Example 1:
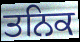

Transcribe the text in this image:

ਤਨਿਕ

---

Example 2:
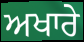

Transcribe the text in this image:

ਅਖਾਰੇ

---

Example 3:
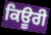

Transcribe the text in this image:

ਕਿਊਰੀ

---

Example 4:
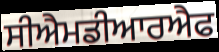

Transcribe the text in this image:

ਸੀਐਮਡੀਆਰਐਫ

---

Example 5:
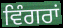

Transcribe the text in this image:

ਵਿੰਗਰਾਂ